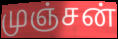
முஞ்சன்